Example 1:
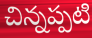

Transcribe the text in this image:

చిన్నప్పటి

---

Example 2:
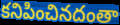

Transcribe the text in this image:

కనిపించినదంతా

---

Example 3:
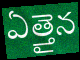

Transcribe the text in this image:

ఏత్తైన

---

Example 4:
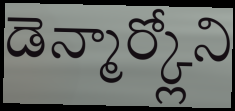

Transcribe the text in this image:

డెన్మార్క్లోని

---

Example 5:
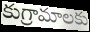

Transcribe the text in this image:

కుగ్రామాలకు